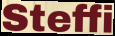
Steffi